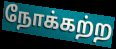
நோக்கற்ற